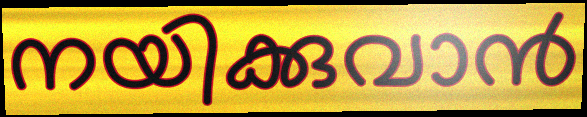
നയിക്കുവാൻ